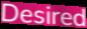
Desired